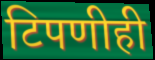
टिपणीही